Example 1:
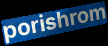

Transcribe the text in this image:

porishrom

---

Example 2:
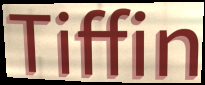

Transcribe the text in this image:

Tiffin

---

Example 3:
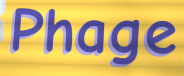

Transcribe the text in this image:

Phage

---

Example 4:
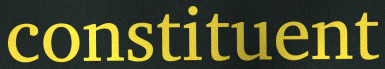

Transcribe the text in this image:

constituent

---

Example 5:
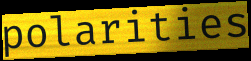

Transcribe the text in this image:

polarities